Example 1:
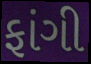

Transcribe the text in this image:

ફાંગી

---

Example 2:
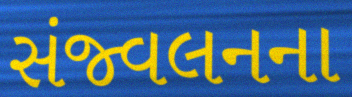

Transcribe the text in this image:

સંજ્વલનના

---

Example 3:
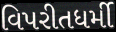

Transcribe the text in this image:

વિપરીતધર્મી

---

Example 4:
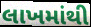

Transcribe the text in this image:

લાખમાંથી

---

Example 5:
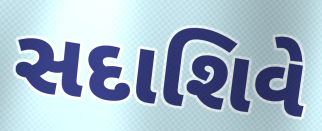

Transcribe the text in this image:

સદાશિવે